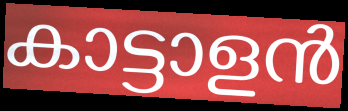
കാട്ടാളൻ